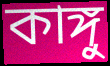
কাঙ্গু